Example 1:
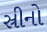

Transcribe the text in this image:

સ્રીનો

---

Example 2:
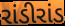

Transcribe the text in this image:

રાંડીરાંડ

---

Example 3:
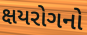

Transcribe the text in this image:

ક્ષયરોગનો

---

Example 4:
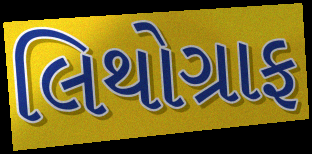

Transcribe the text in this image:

લિથોગ્રાફ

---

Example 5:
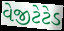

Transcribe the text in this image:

વેજીટેટેડ